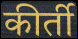
कीर्ती